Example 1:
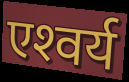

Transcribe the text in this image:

एश्‍वर्य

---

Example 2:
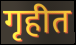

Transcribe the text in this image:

गृहीत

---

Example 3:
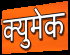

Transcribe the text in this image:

क्युमेक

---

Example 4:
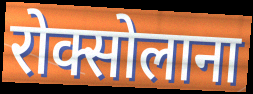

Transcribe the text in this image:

रोक्सोलाना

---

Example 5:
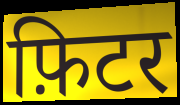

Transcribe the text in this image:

फ़िटर